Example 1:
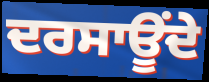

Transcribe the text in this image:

ਦਰਸਾਊਂਦੇ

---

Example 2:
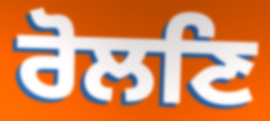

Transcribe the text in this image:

ਰੋਲਣਿ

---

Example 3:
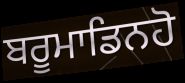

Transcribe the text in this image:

ਬਰੂਮਾਡਿਨਹੋ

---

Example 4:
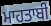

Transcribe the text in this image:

ਮਾਹਤਾਬੀ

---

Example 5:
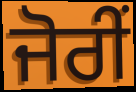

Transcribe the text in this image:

ਜੋਰੀਂ